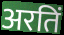
अरतिं